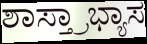
ಶಾಸ್ತ್ರಾಭ್ಯಾಸ